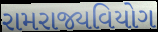
રામરાજ્યવિયોગ